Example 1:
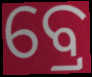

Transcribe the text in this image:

ବ୍ରେ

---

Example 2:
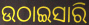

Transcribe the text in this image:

ଉଠାଇସାରି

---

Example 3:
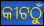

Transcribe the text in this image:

କୀଟଠୁଁ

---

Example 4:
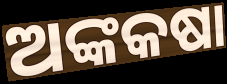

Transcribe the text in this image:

ଅଙ୍କକଷା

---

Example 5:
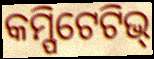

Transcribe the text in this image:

କମ୍ପିଟେଟିଭ୍